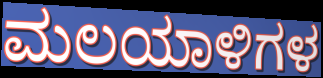
ಮಲಯಾಳಿಗಳ